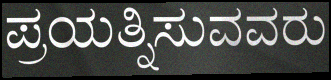
ಪ್ರಯತ್ನಿಸುವವರು